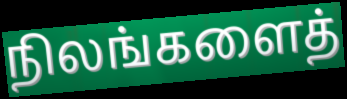
நிலங்களைத்